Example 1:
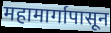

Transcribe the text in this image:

महामार्गापासून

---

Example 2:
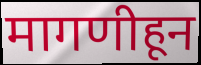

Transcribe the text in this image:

मागणीहून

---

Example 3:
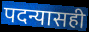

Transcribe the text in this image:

पदन्यासही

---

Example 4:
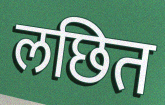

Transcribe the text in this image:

लछित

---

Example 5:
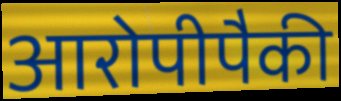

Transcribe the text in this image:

आरोपीपैकी